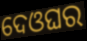
ଦେଓଘର